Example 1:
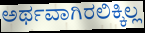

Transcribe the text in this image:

ಅರ್ಥವಾಗಿರಲಿಕ್ಕಿಲ್ಲ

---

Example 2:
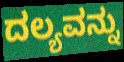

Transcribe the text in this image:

ದಲ್ಯವನ್ನು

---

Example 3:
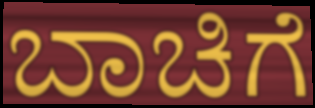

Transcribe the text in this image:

ಬಾಚಿಗೆ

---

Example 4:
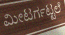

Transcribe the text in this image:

ಮೀಟರ್ಗಟ್ಟಲೆ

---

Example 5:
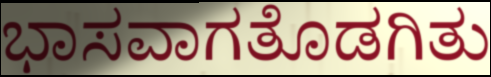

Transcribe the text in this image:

ಭಾಸವಾಗತೊಡಗಿತು